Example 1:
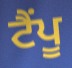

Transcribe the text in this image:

ਟੈਂਪੂ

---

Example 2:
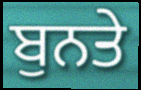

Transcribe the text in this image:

ਬੁਨਤੇ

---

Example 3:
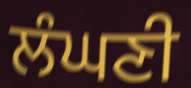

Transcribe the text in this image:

ਲੰਘਣੀ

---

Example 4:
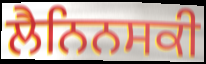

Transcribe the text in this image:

ਲੈਨਿਨਸਕੀ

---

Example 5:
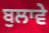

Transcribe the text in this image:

ਬੁਲਾਵੇ